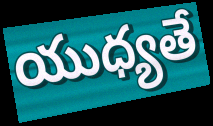
యుధ్యతే